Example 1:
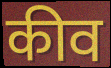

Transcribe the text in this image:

कीव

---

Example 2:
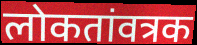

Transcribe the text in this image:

लोकतांवत्रक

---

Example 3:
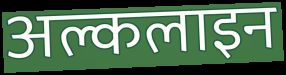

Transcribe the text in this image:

अल्कलाइन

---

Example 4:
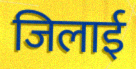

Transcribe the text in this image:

जिलाई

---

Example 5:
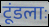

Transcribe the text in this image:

टूंडलाः